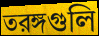
তরঙ্গগুলি